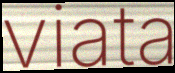
viata